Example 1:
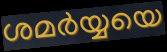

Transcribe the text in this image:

ശമർയ്യയെ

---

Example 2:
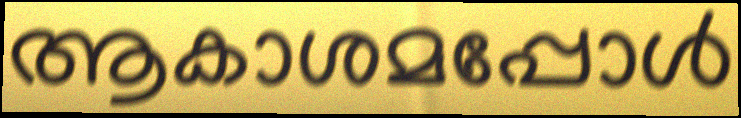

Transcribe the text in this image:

ആകാശമപ്പോൾ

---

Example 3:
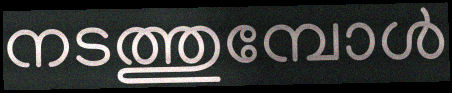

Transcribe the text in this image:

നടത്തുമ്പോൾ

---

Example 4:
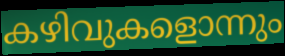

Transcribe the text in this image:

കഴിവുകളൊന്നും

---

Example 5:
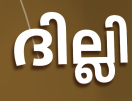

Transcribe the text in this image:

ദില്ലി